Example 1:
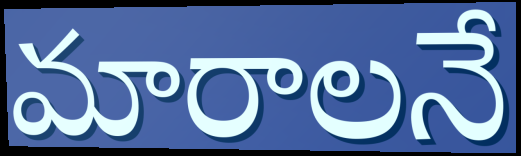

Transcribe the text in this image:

మారాలనే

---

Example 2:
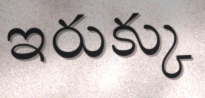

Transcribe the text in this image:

ఇరుక్కు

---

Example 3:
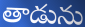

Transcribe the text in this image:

తాడును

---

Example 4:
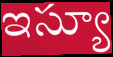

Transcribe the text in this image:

ఇస్యూ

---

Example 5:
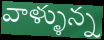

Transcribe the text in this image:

వాళ్ళున్న